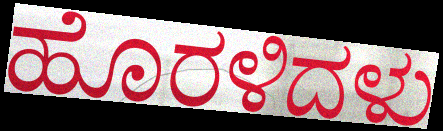
ಹೊರಳಿದಳು